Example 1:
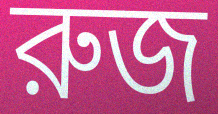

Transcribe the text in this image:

রুজ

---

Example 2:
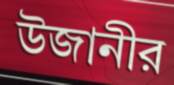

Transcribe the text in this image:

উজানীর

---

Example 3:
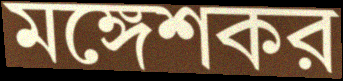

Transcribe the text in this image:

মঙ্গেশকর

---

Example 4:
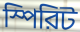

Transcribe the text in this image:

স্পিরিট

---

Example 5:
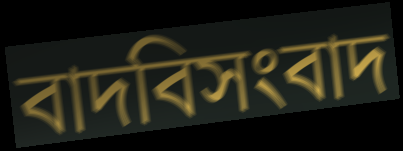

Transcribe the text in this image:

বাদবিসংবাদ